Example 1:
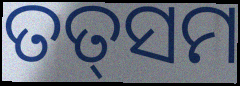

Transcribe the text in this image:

ତତ୍‍ସମ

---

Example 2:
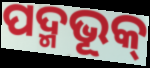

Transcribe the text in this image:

ପଦ୍ମଭୂକ୍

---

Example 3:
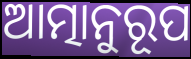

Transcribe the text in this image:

ଆତ୍ମାନୁରୂପ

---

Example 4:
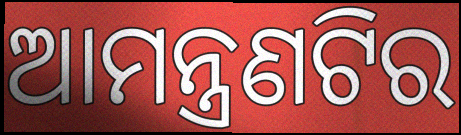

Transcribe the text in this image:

ଆମନ୍ତ୍ରଣଟିର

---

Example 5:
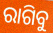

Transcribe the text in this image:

ରାଗିବୁ